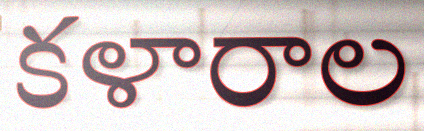
కళారాల